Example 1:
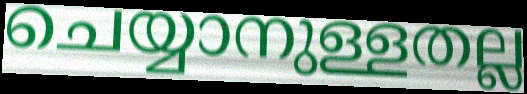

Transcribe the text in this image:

ചെയ്യാനുള്ളതല്ല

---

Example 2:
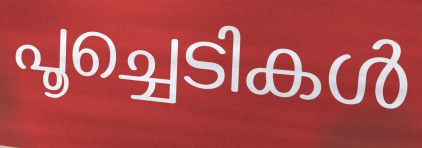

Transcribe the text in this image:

പൂച്ചെടികൾ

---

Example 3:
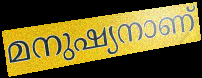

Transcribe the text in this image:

മനുഷ്യനാണ്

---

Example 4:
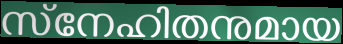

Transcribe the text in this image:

സ്‌നേഹിതനുമായ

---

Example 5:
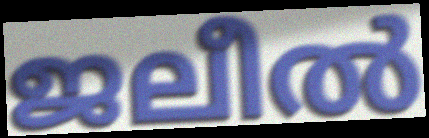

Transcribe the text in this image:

ജലീൽ